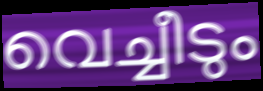
വെച്ചീടും